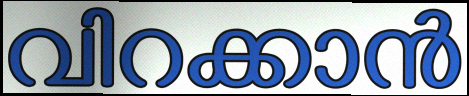
വിറക്കാൻ